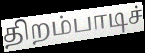
திறம்பாடிச்